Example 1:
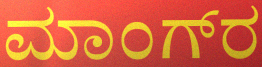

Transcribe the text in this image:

ಮಾಂಗ್‌ರ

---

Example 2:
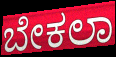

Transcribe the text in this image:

ಬೇಕಲಾ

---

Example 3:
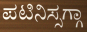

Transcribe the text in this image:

ಪಟಿನಿಸ್ಸಗ್ಗಾ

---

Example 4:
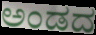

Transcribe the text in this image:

ಅಂಡದ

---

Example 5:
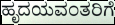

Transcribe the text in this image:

ಹೃದಯವಂತರಿಗೆ